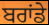
ਬਰਾਂਡੇ